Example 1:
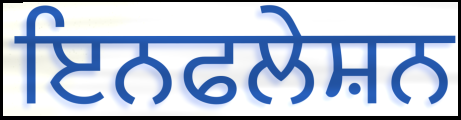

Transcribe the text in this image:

ਇਨਫਲੇਸ਼ਨ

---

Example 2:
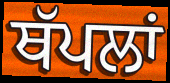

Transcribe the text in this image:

ਥੱਪਲਾਂ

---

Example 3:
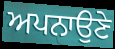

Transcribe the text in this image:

ਅਪਨਾਉਣੇ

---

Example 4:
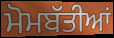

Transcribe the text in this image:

ਮੋਮਬੱਤੀਆਂ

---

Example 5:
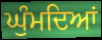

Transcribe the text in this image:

ਘੁੰਮਦਿਆਂ